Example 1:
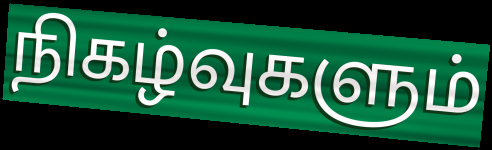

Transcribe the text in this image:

நிகழ்வுகளும்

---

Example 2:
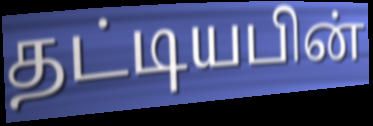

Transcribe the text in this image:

தட்டியபின்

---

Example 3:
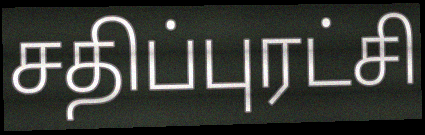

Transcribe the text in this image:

சதிப்புரட்சி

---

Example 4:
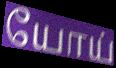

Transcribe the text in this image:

யோய்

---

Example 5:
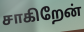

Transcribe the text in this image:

சாகிறேன்